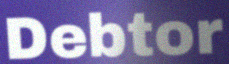
Debtor